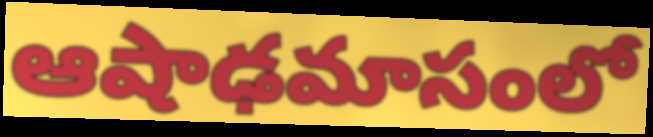
ఆషాఢమాసంలో